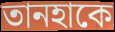
তানহাকে